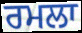
ਰਮਲਾ